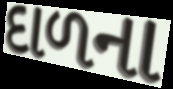
દાળના